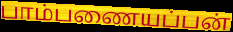
பாம்பணையப்பன்